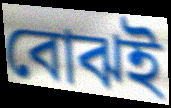
বোঝই